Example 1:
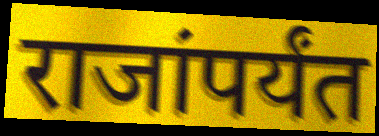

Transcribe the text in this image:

राजांपर्यंत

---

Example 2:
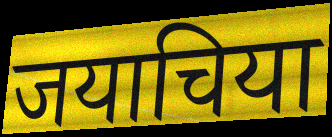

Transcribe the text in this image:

जयाचिया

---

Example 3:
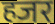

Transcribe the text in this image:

हजर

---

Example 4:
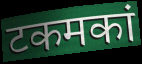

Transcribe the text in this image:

टकमकां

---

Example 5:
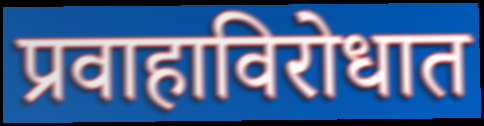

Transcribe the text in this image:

प्रवाहाविरोधात